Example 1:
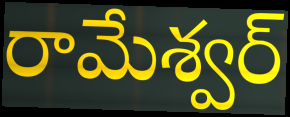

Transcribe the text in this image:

రామేశ్వర్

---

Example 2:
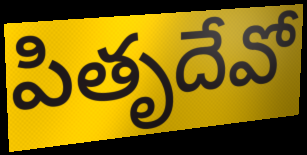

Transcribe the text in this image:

పితృదేవో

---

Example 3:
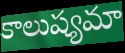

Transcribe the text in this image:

కాలుష్యమా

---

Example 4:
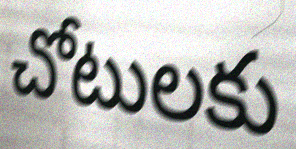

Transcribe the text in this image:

చోటులకు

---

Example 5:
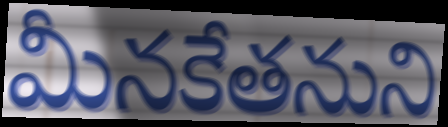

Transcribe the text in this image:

మీనకేతనుని